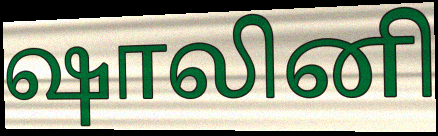
ஷாலினி